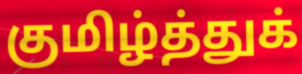
குமிழ்த்துக்